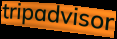
tripadvisor